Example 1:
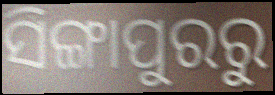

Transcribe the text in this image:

ସିଙ୍ଗାପୁରରୁ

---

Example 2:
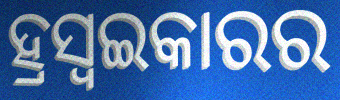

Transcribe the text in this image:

ହ୍ରସ୍ୱଇକାରର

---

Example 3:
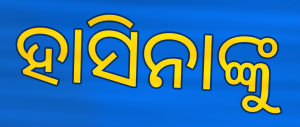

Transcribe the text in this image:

ହାସିନାଙ୍କୁ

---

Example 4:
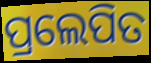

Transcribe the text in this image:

ପ୍ରଲେପିତ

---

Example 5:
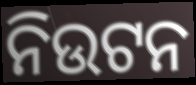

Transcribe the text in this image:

ନିଉଟନ